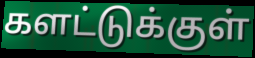
களட்டுக்குள்